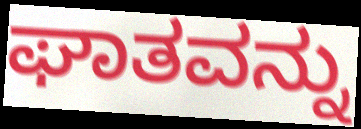
ಘಾತವನ್ನು